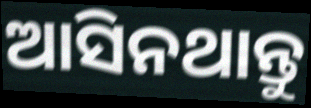
ଆସିନଥାନ୍ତୁ